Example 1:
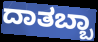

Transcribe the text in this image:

ದಾತಬ್ಬಾ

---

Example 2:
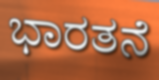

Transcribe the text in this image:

ಭಾರತನೆ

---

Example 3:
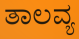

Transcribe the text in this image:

ತಾಲವ್ಯ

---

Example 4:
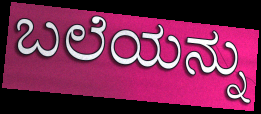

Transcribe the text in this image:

ಬಲೆಯನ್ನು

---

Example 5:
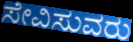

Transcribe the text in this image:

ಸೇವಿಸುವರು